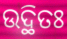
ଉଦ୍ଥିତଃ